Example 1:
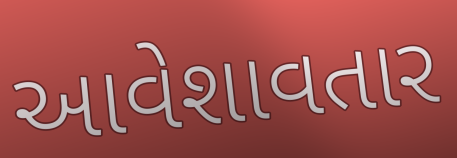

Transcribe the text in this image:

આવેશાવતાર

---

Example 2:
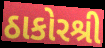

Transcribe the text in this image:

ઠાકોરશ્રી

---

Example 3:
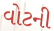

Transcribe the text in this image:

વોટની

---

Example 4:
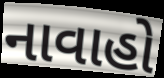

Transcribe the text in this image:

નાવાહો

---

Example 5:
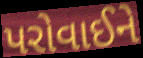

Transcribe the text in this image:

પરોવાઈને